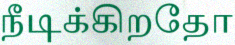
நீடிக்கிறதோ